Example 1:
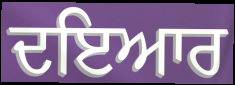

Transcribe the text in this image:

ਦਇਆਰ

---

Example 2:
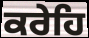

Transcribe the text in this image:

ਕਰੇਹਿ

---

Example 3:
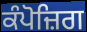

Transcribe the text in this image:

ਕੰਪੋਜ਼ਿਗ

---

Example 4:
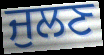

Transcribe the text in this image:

ਜੁਲਣ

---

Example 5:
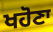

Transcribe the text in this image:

ਖਹੋਣਾ